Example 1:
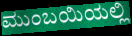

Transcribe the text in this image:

ಮುಂಬಯಿಯಲ್ಲಿ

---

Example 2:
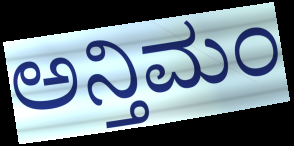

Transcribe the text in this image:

ಅನ್ತಿಮಂ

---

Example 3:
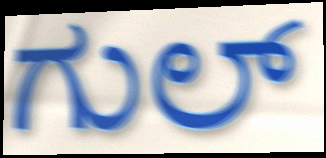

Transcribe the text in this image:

ಗುಲ್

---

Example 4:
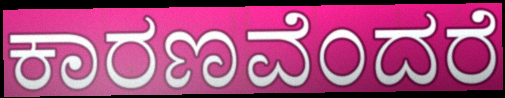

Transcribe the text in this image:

ಕಾರಣವೆಂದರೆ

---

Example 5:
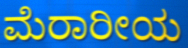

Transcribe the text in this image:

ಮೆರಾರೀಯ